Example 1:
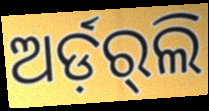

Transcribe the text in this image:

ଅର୍ଡ଼ର୍‌ଲି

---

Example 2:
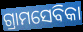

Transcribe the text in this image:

ଗ୍ରାମସେବିକା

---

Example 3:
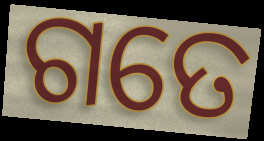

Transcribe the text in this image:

ଗତେ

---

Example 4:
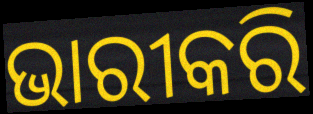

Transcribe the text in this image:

ଭାରୀକରି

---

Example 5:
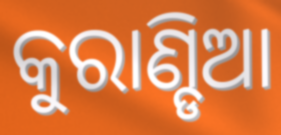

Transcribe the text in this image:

କୁରାଣ୍ଡିଆ